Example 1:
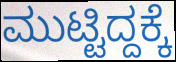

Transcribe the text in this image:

ಮುಟ್ಟಿದ್ದಕ್ಕೆ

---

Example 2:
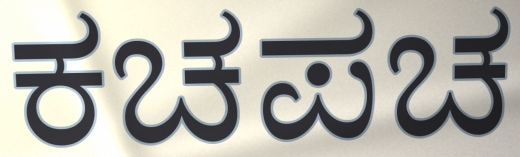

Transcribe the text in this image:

ಕಚಪಚ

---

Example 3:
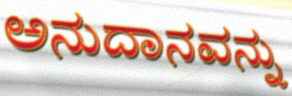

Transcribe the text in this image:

ಅನುದಾನವನ್ನು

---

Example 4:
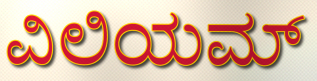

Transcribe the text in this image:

ವಿಲಿಯಮ್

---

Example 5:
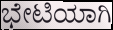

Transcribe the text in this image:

ಭೇಟಿಯಾಗಿ